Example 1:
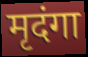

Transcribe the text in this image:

मृदंगा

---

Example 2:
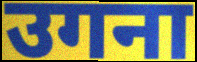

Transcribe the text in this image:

उगना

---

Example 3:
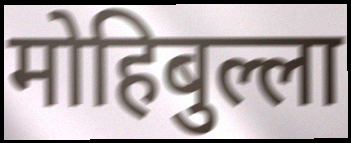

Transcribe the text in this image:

मोहिबुल्ला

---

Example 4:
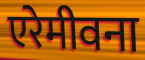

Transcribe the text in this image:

एरेमीवना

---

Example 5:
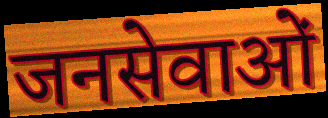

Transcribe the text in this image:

जनसेवाओं